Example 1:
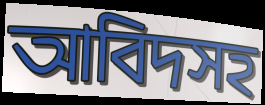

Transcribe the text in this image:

আবিদসহ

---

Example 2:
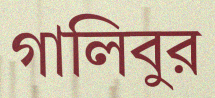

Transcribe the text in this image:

গালিবুর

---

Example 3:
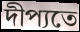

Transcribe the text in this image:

দীপ্যতে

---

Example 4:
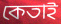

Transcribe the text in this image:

কেতাই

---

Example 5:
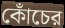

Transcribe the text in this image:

কোঁচের